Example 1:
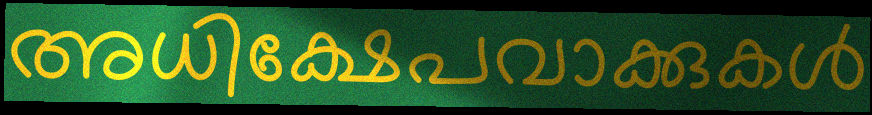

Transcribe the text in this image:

അധിക്ഷേപവാക്കുകൾ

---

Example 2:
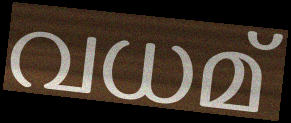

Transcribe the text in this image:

വധമ്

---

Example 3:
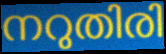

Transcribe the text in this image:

നറുതിരി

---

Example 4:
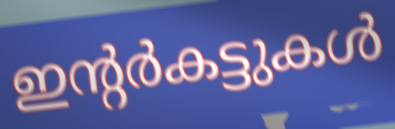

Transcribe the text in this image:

ഇന്റർകട്ടുകൾ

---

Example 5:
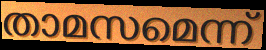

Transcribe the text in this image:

താമസമെന്ന്